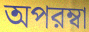
অপরম্বা